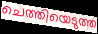
ചെത്തിയെടുത്ത